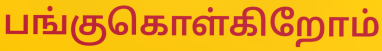
பங்குகொள்கிறோம்